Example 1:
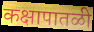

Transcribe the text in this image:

कक्षापातळी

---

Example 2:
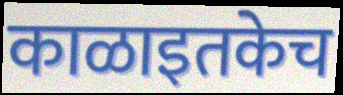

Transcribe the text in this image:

काळाइतकेच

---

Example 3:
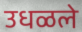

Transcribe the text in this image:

उधळले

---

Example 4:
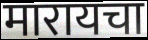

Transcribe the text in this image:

मारायचा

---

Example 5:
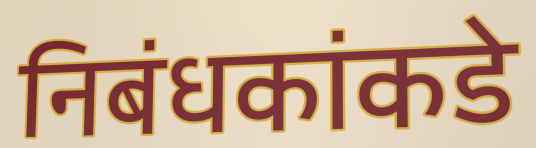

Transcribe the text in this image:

निबंधकांकडे